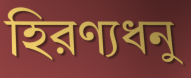
হিরণ্যধনু